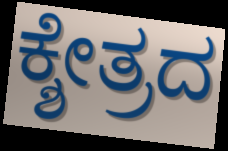
ಕ್ಶೇತ್ರದ